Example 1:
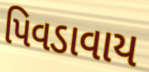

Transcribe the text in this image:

પિવડાવાય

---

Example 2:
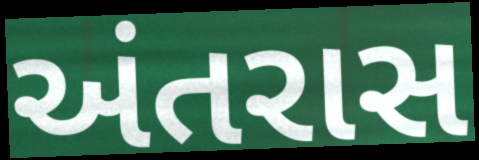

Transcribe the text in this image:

અંતરાસ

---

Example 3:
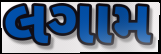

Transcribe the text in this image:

લગામ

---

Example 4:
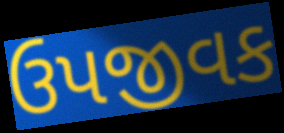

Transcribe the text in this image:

ઉપજીવક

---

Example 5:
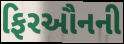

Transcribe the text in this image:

ફિરઔનની